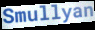
Smullyan